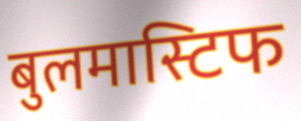
बुलमास्टिफ